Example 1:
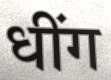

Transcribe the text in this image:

धींग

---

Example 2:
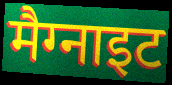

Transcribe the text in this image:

मैग्नाइट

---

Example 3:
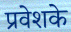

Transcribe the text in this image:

प्रवेशके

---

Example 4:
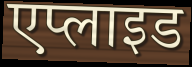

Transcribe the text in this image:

एप्लाइड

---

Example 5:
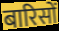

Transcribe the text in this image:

बारिसों